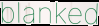
blanked